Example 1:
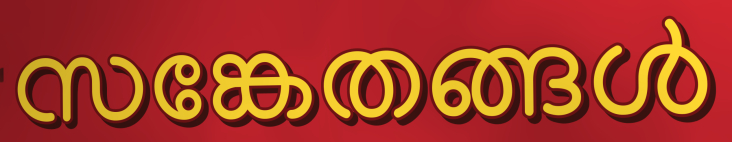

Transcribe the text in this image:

സങ്കേതങ്ങൾ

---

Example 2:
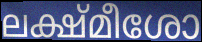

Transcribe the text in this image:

ലക്ഷ്മീശോ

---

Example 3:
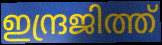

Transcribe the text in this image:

ഇന്ദ്രജിത്ത്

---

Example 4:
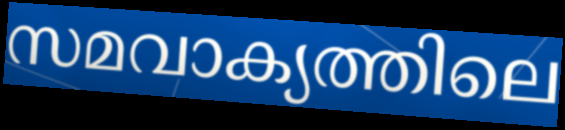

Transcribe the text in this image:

സമവാക്യത്തിലെ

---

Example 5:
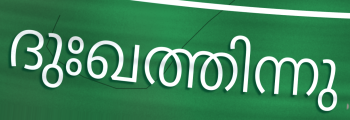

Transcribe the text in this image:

ദുഃഖത്തിന്നു